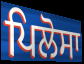
ਪਿਲੋਸਾ